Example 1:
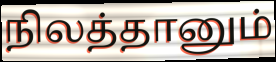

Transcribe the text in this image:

நிலத்தானும்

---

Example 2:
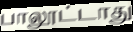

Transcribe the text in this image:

பாலூட்டாது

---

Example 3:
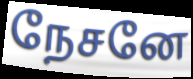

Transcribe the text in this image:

நேசனே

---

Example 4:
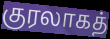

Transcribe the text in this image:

குரலாகத்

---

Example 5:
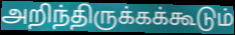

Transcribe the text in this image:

அறிந்திருக்கக்கூடும்